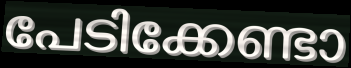
പേടിക്കേണ്ടാ